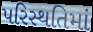
પરિસ્થતિમાં